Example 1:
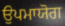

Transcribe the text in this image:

ਉਪਮਾਯੋਗ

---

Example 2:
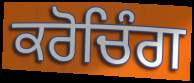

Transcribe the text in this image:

ਕਰੋਚਿੰਗ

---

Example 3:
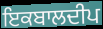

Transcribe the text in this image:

ਇਕਬਾਲਦੀਪ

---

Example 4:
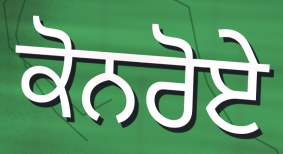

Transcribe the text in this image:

ਕੋਨਰੋਏ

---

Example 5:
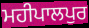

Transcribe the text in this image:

ਮਹੀਪਾਲਪੁਰ